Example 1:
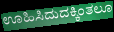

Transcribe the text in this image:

ಊಹಿಸಿದುದಕ್ಕಿಂತಲೂ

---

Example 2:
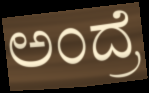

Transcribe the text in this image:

ಅಂದ್ರೆ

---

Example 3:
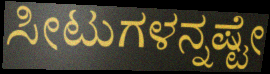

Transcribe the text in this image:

ಸೀಟುಗಳನ್ನಷ್ಟೇ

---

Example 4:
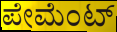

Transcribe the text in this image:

ಪೇಮೆಂಟ್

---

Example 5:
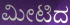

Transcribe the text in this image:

ಮೀಟಿದ